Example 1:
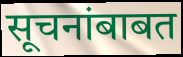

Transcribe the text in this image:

सूचनांबाबत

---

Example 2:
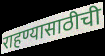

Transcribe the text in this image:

राहण्यासाठीची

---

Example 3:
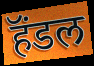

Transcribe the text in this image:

हॅंडल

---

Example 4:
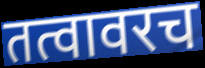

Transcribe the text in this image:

तत्वावरच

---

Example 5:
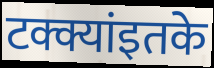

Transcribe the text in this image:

टक्क्यांइतके